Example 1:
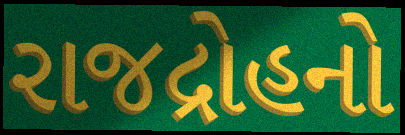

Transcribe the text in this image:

રાજદ્રોહનો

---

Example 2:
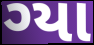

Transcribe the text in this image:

ગ્યા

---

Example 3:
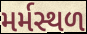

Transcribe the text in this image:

મર્મસ્થળ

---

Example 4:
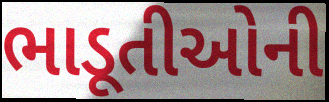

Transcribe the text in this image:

ભાડૂતીઓની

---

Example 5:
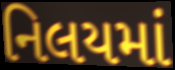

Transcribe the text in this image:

નિલયમાં